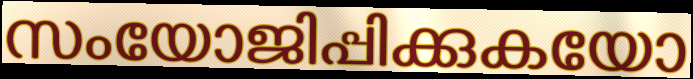
സംയോജിപ്പിക്കുകയോ